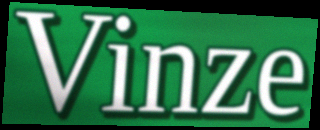
Vinze